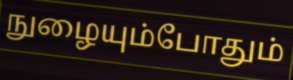
நுழையும்போதும்